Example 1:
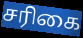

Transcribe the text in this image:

சரிகை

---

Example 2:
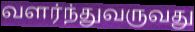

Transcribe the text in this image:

வளர்ந்துவருவது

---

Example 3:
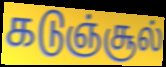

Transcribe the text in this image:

கடுஞ்சூல்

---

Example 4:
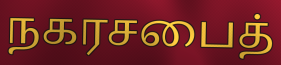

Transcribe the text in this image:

நகரசபைத்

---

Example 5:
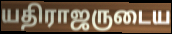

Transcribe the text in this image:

யதிராஜருடைய